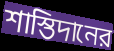
শাস্তিদানের